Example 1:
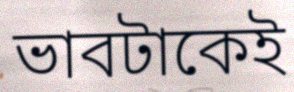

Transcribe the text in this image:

ভাবটাকেই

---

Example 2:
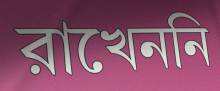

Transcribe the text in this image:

রাখেননি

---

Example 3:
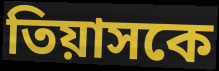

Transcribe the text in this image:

তিয়াসকে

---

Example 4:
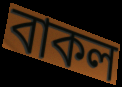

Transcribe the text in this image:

বাকল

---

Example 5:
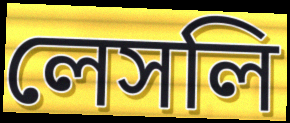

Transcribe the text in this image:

লেসলি